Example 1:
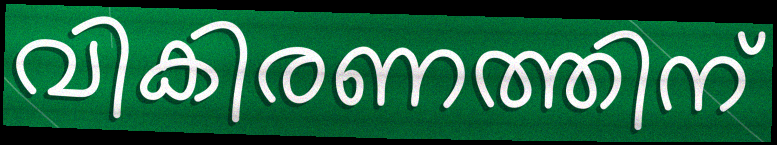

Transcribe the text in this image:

വികിരണത്തിന്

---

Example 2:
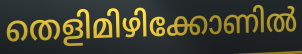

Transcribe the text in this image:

തെളിമിഴിക്കോണിൽ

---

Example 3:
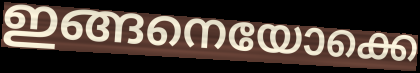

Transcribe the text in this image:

ഇങ്ങനെയോക്കെ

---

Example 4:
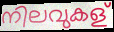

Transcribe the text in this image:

നിലവുകള്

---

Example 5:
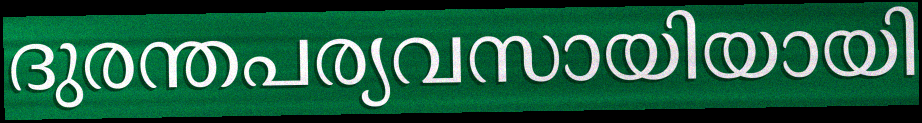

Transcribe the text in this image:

ദുരന്തപര്യവസായിയായി